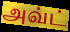
அவ்ட்